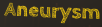
Aneurysm